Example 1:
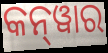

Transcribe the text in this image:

କନ୍‍ୱାର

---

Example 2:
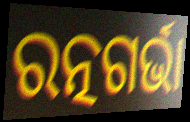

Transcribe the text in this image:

ରତ୍ନଗର୍ଭା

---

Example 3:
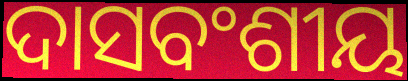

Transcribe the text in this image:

ଦାସବଂଶୀୟ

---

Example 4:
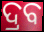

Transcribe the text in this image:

ଦ୍ରବ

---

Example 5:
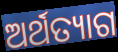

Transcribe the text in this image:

ଅର୍ଥତ୍ୟାଗ